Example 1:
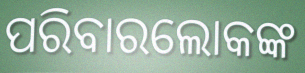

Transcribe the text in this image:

ପରିବାରଲୋକଙ୍କ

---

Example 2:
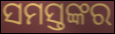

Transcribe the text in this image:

ସମସ୍ତଙ୍କର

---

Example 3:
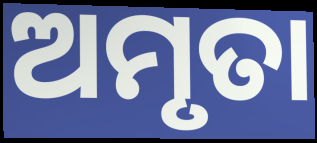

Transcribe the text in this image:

ଅମୃତା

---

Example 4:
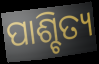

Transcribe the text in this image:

ପାଶ୍ଚିତ୍ୟ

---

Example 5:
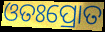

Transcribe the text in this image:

ଓତଃପ୍ରୋତ